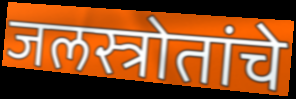
जलस्त्रोतांचे